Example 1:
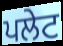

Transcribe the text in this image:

ਪਲੇਟ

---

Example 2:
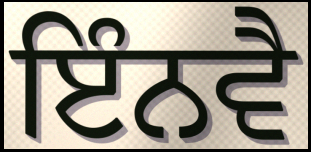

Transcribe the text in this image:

ਇੰਨਵੈ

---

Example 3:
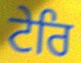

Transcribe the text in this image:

ਟੇਰਿ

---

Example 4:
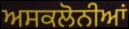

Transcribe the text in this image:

ਅਸਕਲੋਨੀਆਂ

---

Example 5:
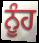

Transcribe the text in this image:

ਨੂੰਹ